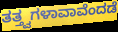
ತತ್ತ್ವಗಳಾವಾವೆಂದಡೆ